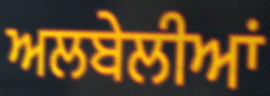
ਅਲਬੇਲੀਆਂ